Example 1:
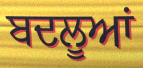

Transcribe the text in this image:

ਬਦਲੂਆਂ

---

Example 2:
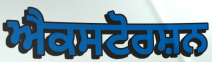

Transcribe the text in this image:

ਐਕਸਟੋਰਸ਼ਨ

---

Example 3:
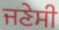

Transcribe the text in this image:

ਜਣੇਸੀ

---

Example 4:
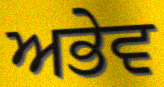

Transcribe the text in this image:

ਅਭੇਵ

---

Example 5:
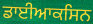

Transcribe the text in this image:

ਡਾਈਆਕਸਿਨ